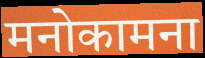
मनोकामना